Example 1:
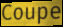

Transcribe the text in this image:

Coupe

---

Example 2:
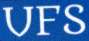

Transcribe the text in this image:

UFS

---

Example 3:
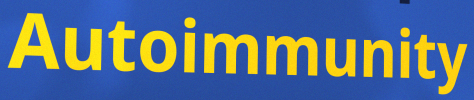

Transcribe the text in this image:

Autoimmunity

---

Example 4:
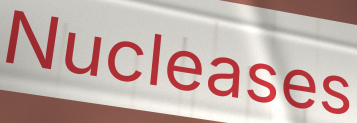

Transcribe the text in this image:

Nucleases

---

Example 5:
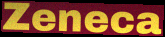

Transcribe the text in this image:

Zeneca